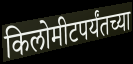
किलोमीटपर्यंतच्या